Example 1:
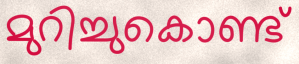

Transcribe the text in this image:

മുറിച്ചുകൊണ്ട്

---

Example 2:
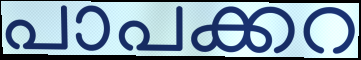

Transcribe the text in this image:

പാപക്കറ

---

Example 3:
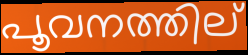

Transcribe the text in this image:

പൂവനത്തില്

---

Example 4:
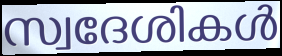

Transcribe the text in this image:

സ്വദേശികൾ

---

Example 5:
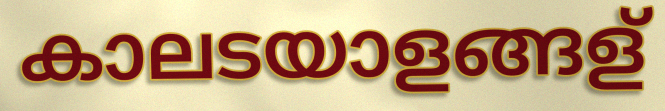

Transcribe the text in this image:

കാലടയാളങ്ങള്